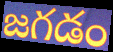
జగడం